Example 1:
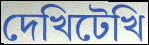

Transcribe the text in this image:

দেখিটেখি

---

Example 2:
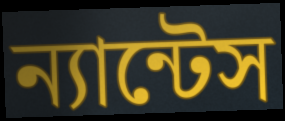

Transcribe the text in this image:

ন্যান্টেস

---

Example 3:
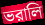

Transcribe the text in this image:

ভরালি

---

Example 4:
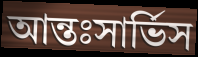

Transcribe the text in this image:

আন্তঃসার্ভিস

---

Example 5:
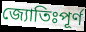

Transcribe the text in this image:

জ্যোতিঃপূর্ণ